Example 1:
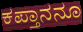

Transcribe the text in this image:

ಕಪ್ತಾನನೂ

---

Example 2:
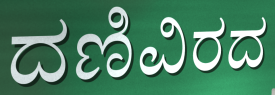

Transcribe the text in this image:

ದಣಿವಿರದ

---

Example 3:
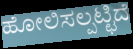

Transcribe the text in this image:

ಹೋಲಿಸಲ್ಪಟ್ಟಿದೆ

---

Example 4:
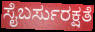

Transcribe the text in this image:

ಸೈಬರ್ಸುರಕ್ಷತೆ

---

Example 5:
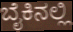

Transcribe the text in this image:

ಬೈಕಿನಲ್ಲಿ